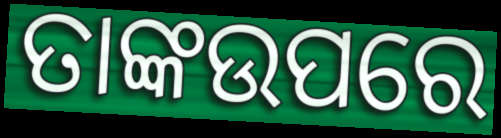
ତାଙ୍କଉପରେ